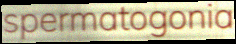
spermatogonia